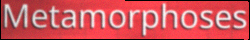
Metamorphoses